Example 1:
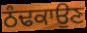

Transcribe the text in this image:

ਠੰਢਕਾਉਣ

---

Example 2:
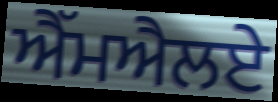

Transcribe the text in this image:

ਐੱਮਐਲਏ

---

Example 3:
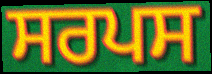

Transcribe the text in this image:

ਸਰਪਸ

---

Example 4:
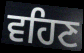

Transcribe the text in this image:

ਵਹਿਣ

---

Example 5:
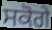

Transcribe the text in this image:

ਸਕੋਗੇ